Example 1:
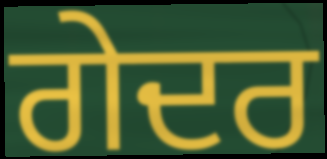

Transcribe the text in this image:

ਗੇਦਰ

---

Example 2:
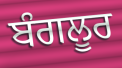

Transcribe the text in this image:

ਬੰਗਲੂਰ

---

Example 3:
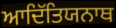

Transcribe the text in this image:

ਆਦਿੱਤਿਯਨਾਥ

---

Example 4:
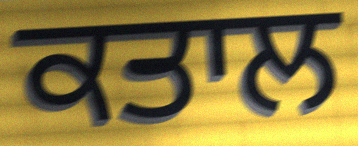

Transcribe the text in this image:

ਕਤਾਲ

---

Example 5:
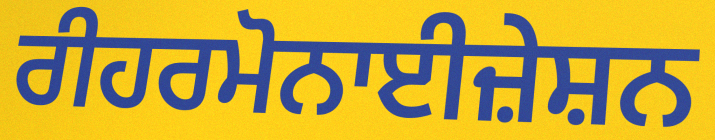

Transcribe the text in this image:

ਰੀਹਰਮੋਨਾਈਜ਼ੇਸ਼ਨ